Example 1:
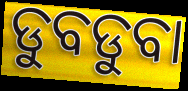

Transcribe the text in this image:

ଡୁବଡୁବା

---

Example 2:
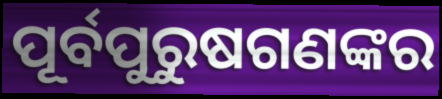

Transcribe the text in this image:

ପୂର୍ବପୁରୁଷଗଣଙ୍କର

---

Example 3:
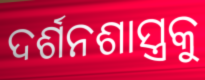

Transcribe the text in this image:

ଦର୍ଶନଶାସ୍ତ୍ରକୁ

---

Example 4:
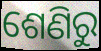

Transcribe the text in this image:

ଶେଣିରୁ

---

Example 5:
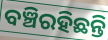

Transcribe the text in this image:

ବଞ୍ଚିରହିଛନ୍ତି